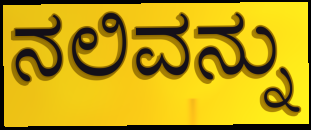
ನಲಿವನ್ನು